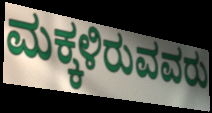
ಮಕ್ಕಳಿರುವವರು